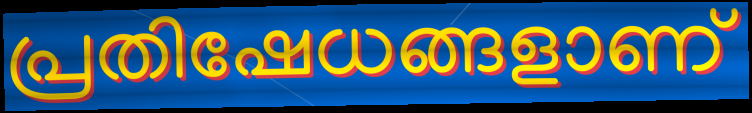
പ്രതിഷേധങ്ങളാണ്